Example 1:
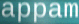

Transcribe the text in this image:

appam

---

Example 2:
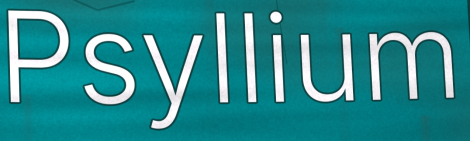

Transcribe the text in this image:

Psyllium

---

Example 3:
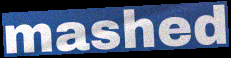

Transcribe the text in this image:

mashed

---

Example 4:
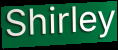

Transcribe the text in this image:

Shirley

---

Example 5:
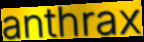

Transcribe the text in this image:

anthrax